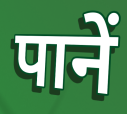
पानें